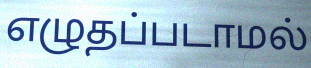
எழுதப்படாமல்